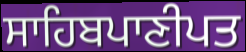
ਸਾਹਿਬਪਾਣੀਪਤ